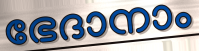
ഭേദാനാം